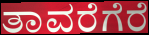
ತಾವರೆಗೆರೆ